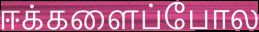
ஈக்களைப்போல